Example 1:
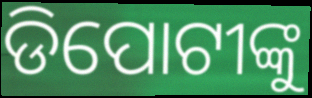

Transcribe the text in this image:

ଡିପୋଟୀଙ୍କୁ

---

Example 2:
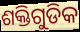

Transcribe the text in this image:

ଶକ୍ତିଗୁଡିକ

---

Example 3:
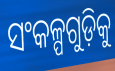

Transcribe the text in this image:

ସଂକଳ୍ପଗୁଡ଼ିକୁ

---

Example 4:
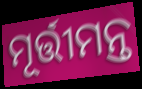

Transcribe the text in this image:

ମୂର୍ତ୍ତୀମନ୍ତ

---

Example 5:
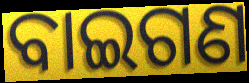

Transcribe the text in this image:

ବାଇଗଣ